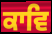
ਕਾਵਿ